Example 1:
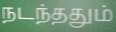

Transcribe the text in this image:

நடந்ததும்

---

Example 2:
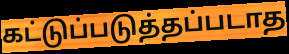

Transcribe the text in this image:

கட்டுப்படுத்தப்படாத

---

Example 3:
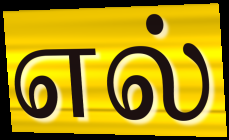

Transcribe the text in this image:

எல்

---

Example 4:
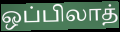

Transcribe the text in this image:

ஒப்பிலாத்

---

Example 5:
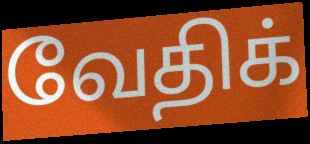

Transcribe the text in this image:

வேதிக்